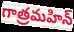
గాత్రమహిన్